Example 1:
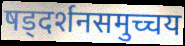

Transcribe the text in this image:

षड्दर्शनसमुच्चय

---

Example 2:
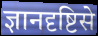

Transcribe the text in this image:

ज्ञानदृष्टिसे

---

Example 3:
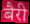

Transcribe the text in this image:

बैरी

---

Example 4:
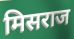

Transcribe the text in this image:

मिसराज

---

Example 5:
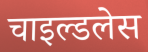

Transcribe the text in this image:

चाइल्डलेस